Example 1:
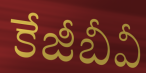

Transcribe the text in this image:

కేజీబీవీ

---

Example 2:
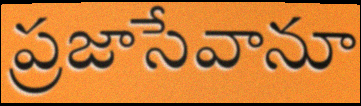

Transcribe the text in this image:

ప్రజాసేవానూ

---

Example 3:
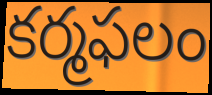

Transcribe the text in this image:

కర్మఫలం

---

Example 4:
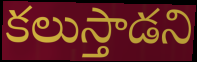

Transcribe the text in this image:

కలుస్తాడని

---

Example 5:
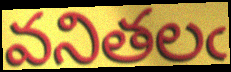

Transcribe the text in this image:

వనితలఁ